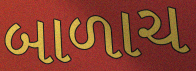
બાળાચ